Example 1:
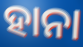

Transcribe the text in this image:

ହାନା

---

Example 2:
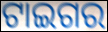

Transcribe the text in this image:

ଟାଇଗର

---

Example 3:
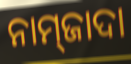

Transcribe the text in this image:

ନାମ୍‌ଜାଦା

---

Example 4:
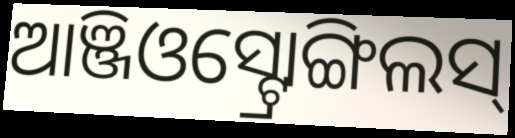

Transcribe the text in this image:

ଆଞ୍ଜିଓସ୍ଟ୍ରୋଙ୍ଗିଲସ୍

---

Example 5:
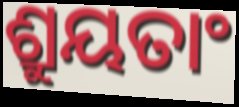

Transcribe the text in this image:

ଶ୍ରୁୟତାଂ